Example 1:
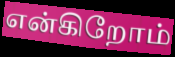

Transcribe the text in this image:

என்கிறோம்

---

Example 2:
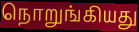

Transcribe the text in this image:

நொறுங்கியது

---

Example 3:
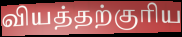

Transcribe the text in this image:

வியத்தற்குரிய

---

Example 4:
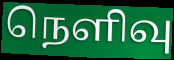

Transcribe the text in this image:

நெளிவு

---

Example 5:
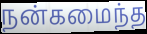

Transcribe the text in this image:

நன்கமைந்த